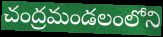
చంద్రమండలంలోని